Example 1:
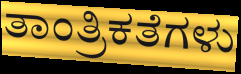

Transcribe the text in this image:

ತಾಂತ್ರಿಕತೆಗಳು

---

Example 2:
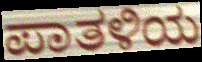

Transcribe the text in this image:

ಪಾತಳಿಯ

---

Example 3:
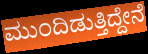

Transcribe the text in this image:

ಮುಂದಿಡುತ್ತಿದ್ದೇನೆ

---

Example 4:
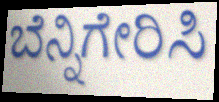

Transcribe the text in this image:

ಬೆನ್ನಿಗೇರಿಸಿ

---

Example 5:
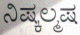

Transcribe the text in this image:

ನಿಷ್ಕಲ್ಮಷ